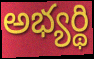
అభ్యర్థి